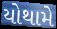
યોથામે